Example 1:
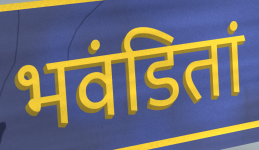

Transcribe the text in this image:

भवंडितां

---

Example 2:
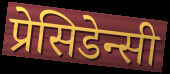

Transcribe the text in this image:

प्रेसिडेन्सी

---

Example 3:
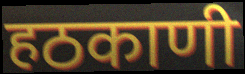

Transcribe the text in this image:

हठकाणी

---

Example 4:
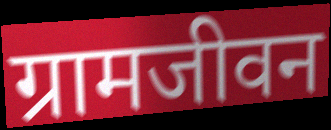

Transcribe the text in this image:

ग्रामजीवन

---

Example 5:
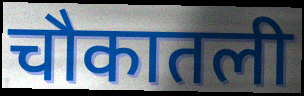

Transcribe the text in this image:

चौकातली